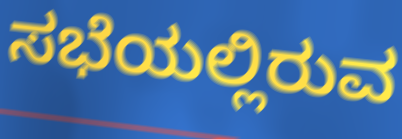
ಸಭೆಯಲ್ಲಿರುವ